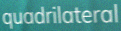
quadrilateral